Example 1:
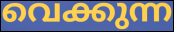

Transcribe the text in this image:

വെക്കുന്ന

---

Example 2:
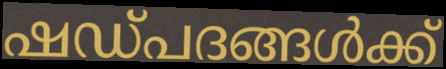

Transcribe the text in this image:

ഷഡ്പദങ്ങൾക്ക്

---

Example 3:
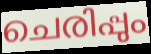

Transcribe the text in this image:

ചെരിപ്പും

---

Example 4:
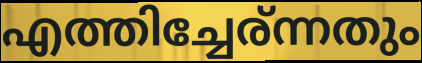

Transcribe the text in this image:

എത്തിച്ചേര്ന്നതും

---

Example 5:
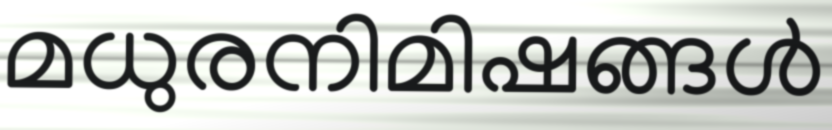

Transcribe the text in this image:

മധുരനിമിഷങ്ങൾ